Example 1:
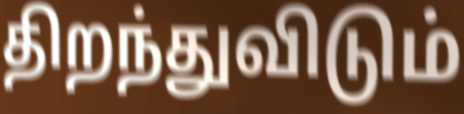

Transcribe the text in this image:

திறந்துவிடும்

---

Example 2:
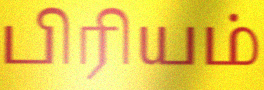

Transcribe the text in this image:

பிரியம்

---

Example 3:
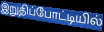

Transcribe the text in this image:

இறுதிப்போட்டியில்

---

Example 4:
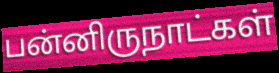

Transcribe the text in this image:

பன்னிருநாட்கள்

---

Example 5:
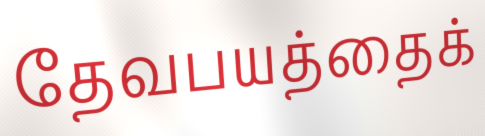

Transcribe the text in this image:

தேவபயத்தைக்